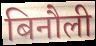
बिनौली